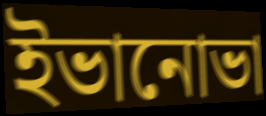
ইভানোভা